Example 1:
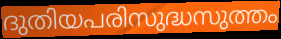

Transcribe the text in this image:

ദുതിയപരിസുദ്ധസുത്തം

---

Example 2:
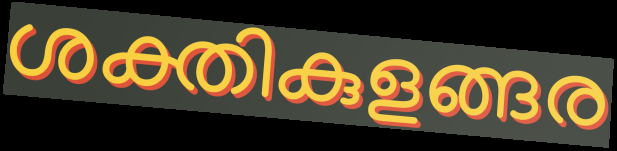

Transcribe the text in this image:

ശക്തികുളങ്ങര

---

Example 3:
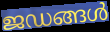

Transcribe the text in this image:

ജഡങ്ങൾ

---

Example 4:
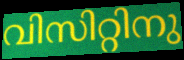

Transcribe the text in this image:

വിസിറ്റിനു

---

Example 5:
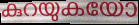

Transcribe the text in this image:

കുറയുകയോ